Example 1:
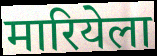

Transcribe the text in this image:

मारियेला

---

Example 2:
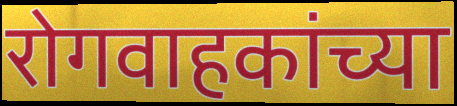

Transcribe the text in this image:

रोगवाहकांच्या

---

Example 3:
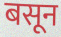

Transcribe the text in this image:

बसून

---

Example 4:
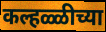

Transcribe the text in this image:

कल्हळ्ळीच्या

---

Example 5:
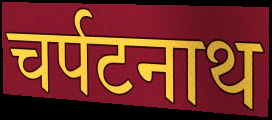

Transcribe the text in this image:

चर्पटनाथ